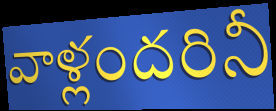
వాళ్లందరినీ